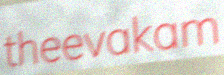
theevakam